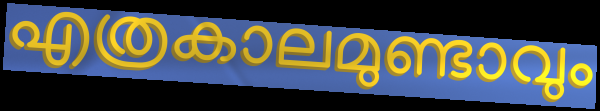
എത്രകാലമുണ്ടാവും